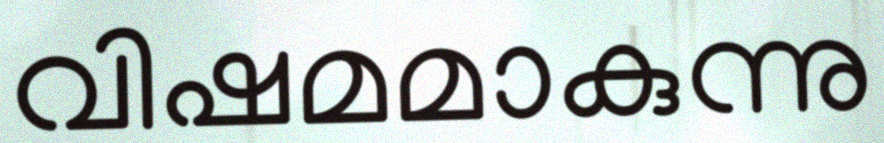
വിഷമമാകുന്നു